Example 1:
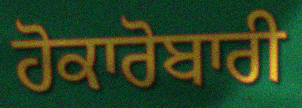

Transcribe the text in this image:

ਹੋਕਾਰੋਬਾਰੀ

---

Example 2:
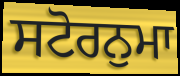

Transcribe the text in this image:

ਸਟੋਰਨੁਮਾ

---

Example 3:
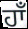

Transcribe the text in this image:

ਹਾਁ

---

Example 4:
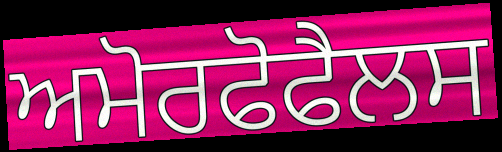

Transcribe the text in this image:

ਅਮੋਰਫੋਫੈਲਸ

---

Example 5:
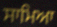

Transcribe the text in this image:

ਸਾਮਿਆ